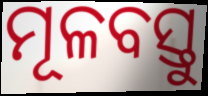
ମୂଳବସ୍ତୁ